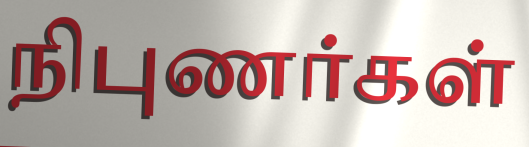
நிபுணர்கள்